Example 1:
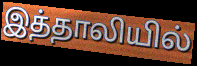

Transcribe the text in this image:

இத்தாலியில்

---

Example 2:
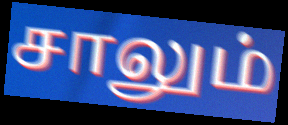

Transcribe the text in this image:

சாலும்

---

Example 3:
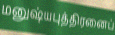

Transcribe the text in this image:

மனுஷ்யபுத்திரனைப்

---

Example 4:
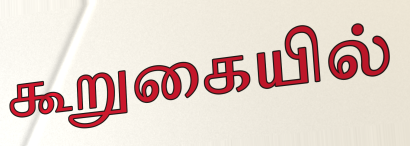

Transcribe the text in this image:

கூறுகையில்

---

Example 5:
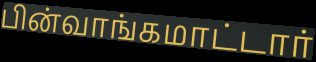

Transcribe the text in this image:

பின்வாங்கமாட்டார்